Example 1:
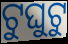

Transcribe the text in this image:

ଟୁଘୁଟୁ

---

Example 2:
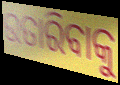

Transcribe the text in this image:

ଉତାରିବାକୁ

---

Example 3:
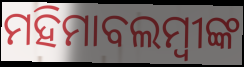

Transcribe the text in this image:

ମହିମାବଲମ୍ବୀଙ୍କ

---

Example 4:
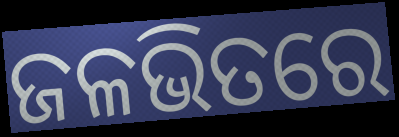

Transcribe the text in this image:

ଜଳଭିତରେ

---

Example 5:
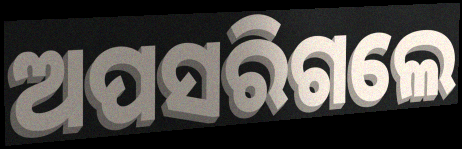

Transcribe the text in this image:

ଅପସରିଗଲେ